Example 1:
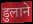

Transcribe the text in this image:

डुलाने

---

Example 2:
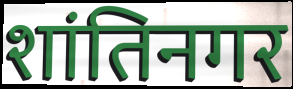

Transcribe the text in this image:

शांतिनगर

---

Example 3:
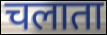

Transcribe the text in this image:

चलाता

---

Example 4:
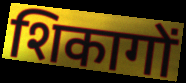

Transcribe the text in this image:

शिकागों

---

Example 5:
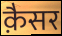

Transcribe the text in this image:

क़ैसर